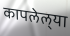
कापलेल्या